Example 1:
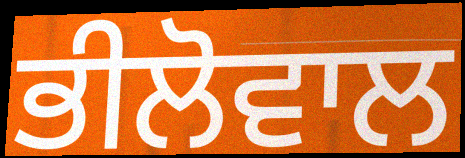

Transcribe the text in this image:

ਭੀਲੋਵਾਲ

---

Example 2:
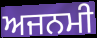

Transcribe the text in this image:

ਅਜਨਮੀ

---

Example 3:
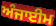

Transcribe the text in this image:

ਅੰਜਾਈਮ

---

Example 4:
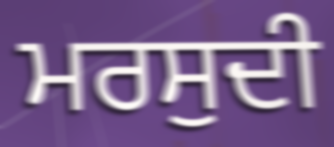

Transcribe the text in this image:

ਮਰਸੁਦੀ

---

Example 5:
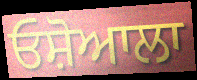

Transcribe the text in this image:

ਓਸ਼ੋਆਲਾ